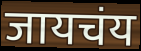
जायचंय